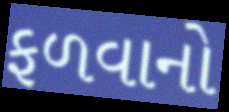
ફળવાનો